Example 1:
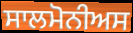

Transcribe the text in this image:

ਸਾਲਮੋਨੀਅਸ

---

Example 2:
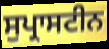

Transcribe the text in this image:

ਸੁਪ੍ਰਾਸਟੀਨ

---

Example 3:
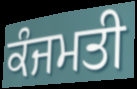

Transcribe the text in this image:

ਕੰਜਮਤੀ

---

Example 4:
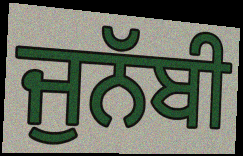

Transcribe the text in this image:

ਜੁਨੱਬੀ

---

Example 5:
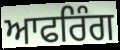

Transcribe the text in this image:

ਆਫਰਿੰਗ